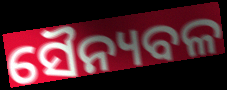
ସୈନ୍ୟବଳ